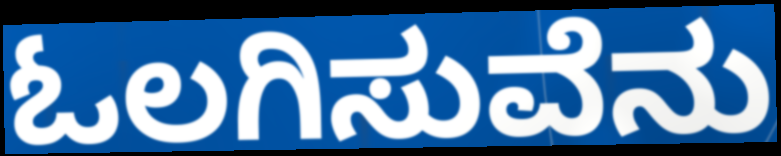
ಓಲಗಿಸುವೆನು